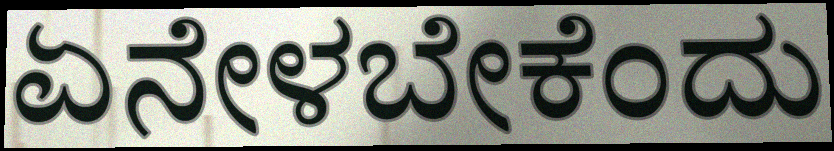
ಏನೇಳಬೇಕೆಂದು